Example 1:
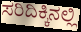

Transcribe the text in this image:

ಸರಿದಿಕ್ಕಿನಲ್ಲಿ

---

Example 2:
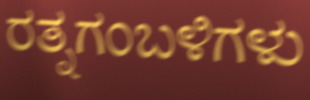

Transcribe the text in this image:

ರತ್ನಗಂಬಳಿಗಳು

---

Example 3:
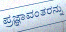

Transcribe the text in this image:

ಪ್ರಜ್ಞಾವಂತರನ್ನು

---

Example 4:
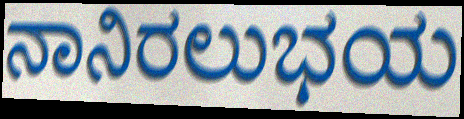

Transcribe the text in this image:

ನಾನಿರಲುಭಯ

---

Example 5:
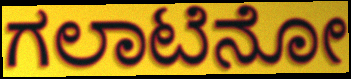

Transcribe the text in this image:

ಗಲಾಟೆನೋ